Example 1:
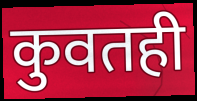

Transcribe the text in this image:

कुवतही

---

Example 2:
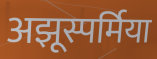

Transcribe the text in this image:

अझूस्पर्मिया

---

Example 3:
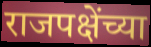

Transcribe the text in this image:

राजपक्षेंच्या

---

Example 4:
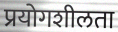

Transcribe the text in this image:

प्रयोगशीलता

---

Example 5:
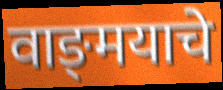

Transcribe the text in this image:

वाङ्‍मयाचे